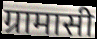
ग्रामासी